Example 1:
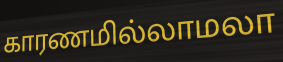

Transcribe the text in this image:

காரணமில்லாமலா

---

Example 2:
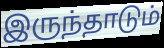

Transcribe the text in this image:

இருந்தாடும்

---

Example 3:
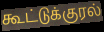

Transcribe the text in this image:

கூட்டுக்குரல்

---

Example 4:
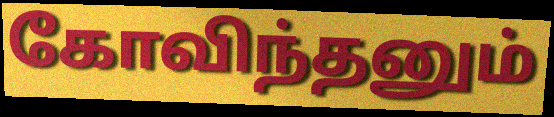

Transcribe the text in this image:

கோவிந்தனும்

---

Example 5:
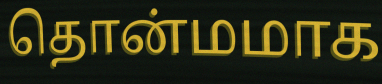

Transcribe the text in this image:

தொன்மமாக